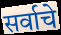
सर्वाचे